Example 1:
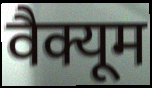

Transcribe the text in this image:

वैक्यूम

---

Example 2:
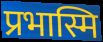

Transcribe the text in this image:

प्रभास्मि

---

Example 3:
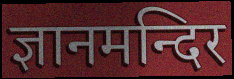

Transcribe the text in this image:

ज्ञानमन्दिर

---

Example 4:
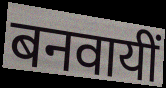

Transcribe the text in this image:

बनवायीं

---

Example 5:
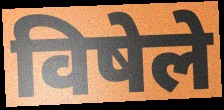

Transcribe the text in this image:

विषेले